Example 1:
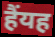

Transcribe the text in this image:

हैंयह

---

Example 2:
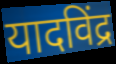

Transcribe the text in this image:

यादविंद्र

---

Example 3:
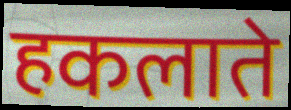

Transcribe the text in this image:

हकलाते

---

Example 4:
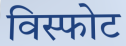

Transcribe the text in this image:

विस्फोट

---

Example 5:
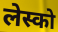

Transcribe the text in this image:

लेस्को